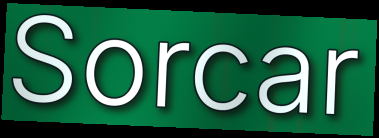
Sorcar